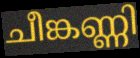
ചീങ്കണ്ണി